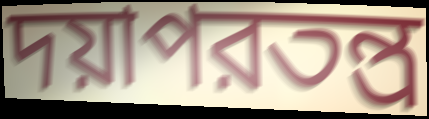
দয়াপরতন্ত্র